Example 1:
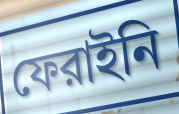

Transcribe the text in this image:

ফেরাইনি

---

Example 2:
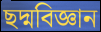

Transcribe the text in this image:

ছদ্মবিজ্ঞান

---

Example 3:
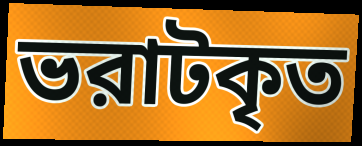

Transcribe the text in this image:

ভরাটকৃত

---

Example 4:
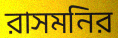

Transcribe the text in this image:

রাসমনির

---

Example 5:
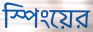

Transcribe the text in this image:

স্পিংয়ের